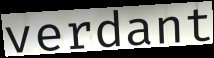
verdant